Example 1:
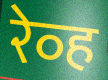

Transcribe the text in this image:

रेव्ह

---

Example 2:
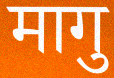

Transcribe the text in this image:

मागु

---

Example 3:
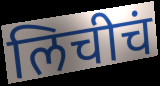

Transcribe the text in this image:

लिचीचं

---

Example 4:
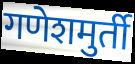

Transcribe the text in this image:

गणेशमुर्ती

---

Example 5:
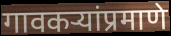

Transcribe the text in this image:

गावकऱ्यांप्रमाणे